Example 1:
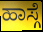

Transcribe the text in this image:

ಹಾಸ್ಗೆ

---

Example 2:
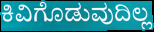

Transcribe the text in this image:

ಕಿವಿಗೊಡುವುದಿಲ್ಲ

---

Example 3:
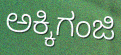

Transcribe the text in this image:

ಅಕ್ಕಿಗಂಜಿ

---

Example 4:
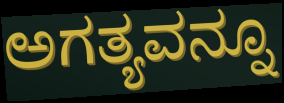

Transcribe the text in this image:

ಅಗತ್ಯವನ್ನೂ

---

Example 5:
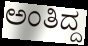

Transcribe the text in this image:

ಅಂತಿದ್ದ